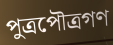
পুত্রপৌত্রগণ